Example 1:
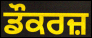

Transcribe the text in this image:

ਡੌਕਰਜ਼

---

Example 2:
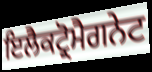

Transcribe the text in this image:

ਇਲੈਕਟ੍ਰੋਮੈਗਨੇਟ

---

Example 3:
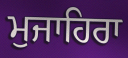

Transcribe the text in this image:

ਮੁਜਾਹਿਰਾ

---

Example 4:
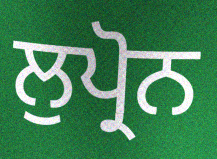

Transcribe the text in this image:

ਲੁਪ੍ਰੋਨ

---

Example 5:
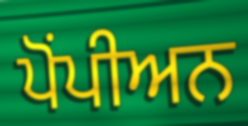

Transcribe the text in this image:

ਪੋਂਪੀਅਨ